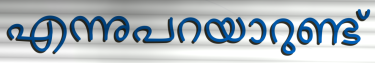
എന്നുപറയാറുണ്ട്